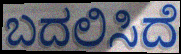
ಬದಲಿಸಿದೆ